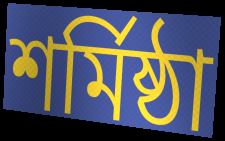
শৰ্মিষ্ঠা